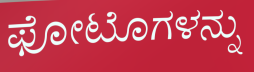
ಫೋಟೊಗಳನ್ನು